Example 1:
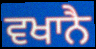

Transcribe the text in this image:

ਵਖਾਨੈ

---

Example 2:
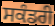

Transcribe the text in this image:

ਸਕੰਡਰੀ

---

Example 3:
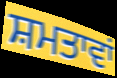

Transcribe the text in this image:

ਸ਼ਮਤਾਵਾਂ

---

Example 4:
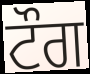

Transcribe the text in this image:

ਟੌਗ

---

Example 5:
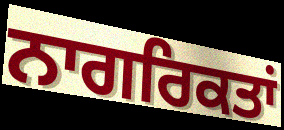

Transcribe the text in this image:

ਨਾਗਰਿਕਤਾਂ